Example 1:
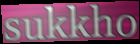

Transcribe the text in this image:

sukkho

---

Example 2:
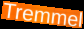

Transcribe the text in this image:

Tremmel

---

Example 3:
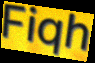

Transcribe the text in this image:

Fiqh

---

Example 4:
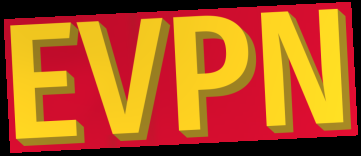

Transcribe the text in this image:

EVPN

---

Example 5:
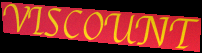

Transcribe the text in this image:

VISCOUNT